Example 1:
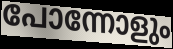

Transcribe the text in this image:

പോന്നോളും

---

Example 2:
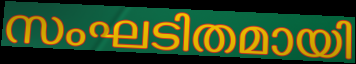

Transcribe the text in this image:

സംഘടിതമായി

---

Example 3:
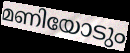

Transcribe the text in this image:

മണിയോടും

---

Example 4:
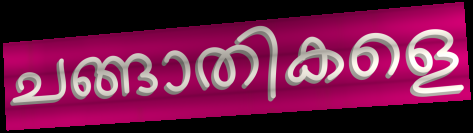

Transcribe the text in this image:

ചങ്ങാതികളെ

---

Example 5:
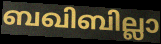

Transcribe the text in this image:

ബഖിബില്ലാ